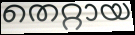
തെറ്റായ